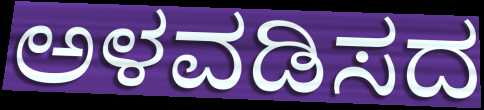
ಅಳವಡಿಸದ